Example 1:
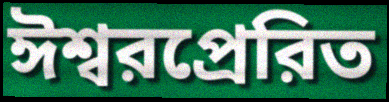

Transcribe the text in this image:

ঈশ্বরপ্রেরিত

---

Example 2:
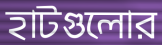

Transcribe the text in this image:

হাটগুলোর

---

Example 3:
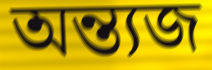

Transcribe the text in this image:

অন্ত্যজ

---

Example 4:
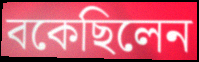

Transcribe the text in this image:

বকেছিলেন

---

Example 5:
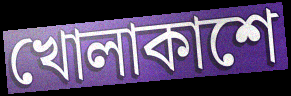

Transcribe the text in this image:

খোলাকাশে